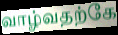
வாழ்வதற்கே